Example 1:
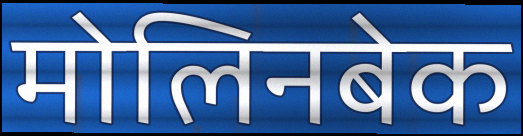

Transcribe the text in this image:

मोलिनबेक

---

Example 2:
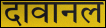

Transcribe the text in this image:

दावानल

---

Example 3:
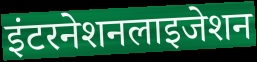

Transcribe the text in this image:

इंटरनेशनलाइजेशन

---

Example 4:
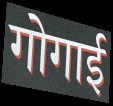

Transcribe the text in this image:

गोगाई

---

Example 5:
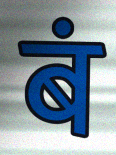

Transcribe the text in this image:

बं